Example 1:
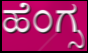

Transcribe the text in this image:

ಹೆಂಗ್ಸ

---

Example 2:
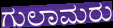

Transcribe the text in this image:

ಗುಲಾಮರು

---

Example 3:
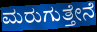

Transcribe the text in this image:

ಮರುಗುತ್ತೇನೆ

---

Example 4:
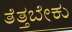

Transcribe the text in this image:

ತೆತ್ತಬೇಕು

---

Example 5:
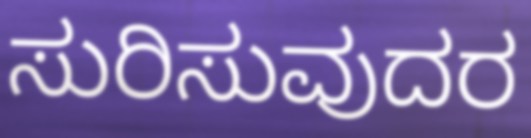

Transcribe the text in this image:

ಸುರಿಸುವುದರ